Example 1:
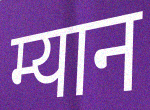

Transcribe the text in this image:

म्यान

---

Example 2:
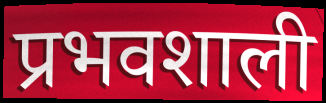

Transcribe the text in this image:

प्रभवशाली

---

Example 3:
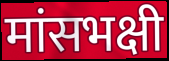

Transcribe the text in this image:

मांसभक्षी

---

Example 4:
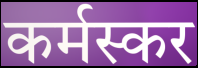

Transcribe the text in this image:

कर्मस्कर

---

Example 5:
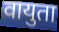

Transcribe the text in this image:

वायुता